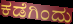
ಕಡೆಗಿಂದು